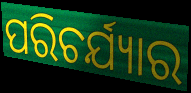
ପରିଚର୍ଯ୍ୟାର